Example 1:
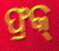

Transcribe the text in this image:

ଫ୍ରକ୍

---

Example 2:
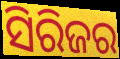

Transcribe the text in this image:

ସିରିଜର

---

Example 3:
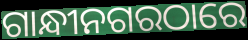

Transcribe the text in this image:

ଗାନ୍ଧୀନଗରଠାରେ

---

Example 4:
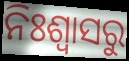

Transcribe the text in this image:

ନିଃଶ୍ଵାସରୁ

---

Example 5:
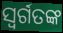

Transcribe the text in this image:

ସ୍ୱର୍ଗତଙ୍କ